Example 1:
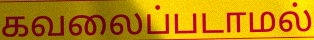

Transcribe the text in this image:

கவலைப்படாமல்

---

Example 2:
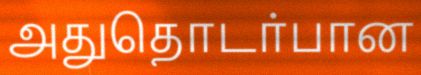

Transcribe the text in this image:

அதுதொடர்பான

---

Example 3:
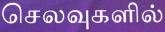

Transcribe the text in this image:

செலவுகளில்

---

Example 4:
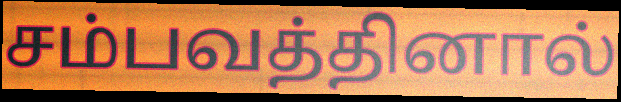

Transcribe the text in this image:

சம்பவத்தினால்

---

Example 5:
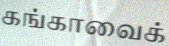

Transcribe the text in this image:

கங்காவைக்